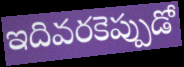
ఇదివరకెప్పుడో